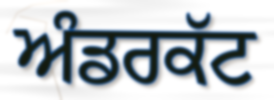
ਅੰਡਰਕੱਟ